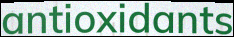
antioxidants